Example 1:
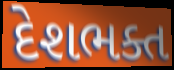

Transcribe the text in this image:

દેશભક્ત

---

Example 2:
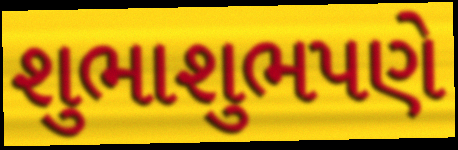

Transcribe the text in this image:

શુભાશુભપણે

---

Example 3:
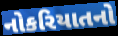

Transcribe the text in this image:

નોકરિયાતનો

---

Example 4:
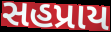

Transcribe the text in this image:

સહપ્રાય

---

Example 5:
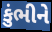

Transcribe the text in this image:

કુંભીને